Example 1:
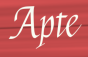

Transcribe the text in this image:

Apte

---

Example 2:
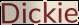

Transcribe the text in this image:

Dickie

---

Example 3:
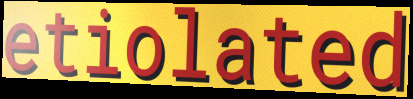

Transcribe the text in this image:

etiolated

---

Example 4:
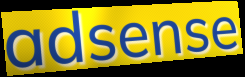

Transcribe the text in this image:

adsense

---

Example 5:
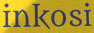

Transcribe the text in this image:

inkosi